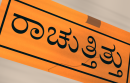
ರಾಚುತ್ತಿತ್ತು